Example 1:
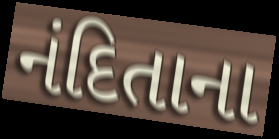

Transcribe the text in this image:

નંદિતાના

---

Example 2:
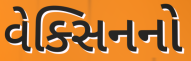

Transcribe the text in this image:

વેક્સિનનો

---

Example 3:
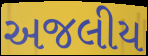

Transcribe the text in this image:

અજલીય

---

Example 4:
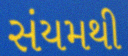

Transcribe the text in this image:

સંયમથી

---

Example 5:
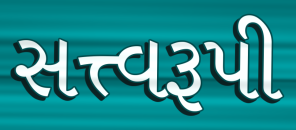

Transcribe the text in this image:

સત્ત્વરૂપી